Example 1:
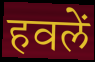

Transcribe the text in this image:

हवलें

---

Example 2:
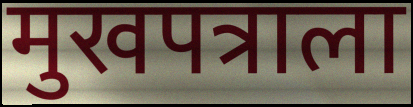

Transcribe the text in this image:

मुखपत्राला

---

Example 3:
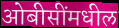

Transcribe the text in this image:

ओबीसींमधील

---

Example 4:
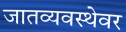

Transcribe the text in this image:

जातव्यवस्थेवर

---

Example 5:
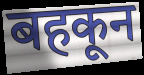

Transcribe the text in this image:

बहकून